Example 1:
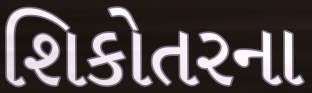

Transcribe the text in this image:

શિકોતરના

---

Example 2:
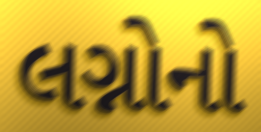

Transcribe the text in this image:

લગ્નોનો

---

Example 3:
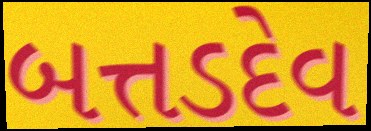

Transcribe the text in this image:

બત્તડદેવ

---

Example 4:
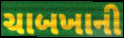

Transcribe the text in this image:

ચાબખાની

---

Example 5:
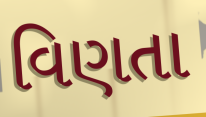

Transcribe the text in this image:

વિણતા